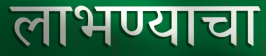
लाभण्याचा